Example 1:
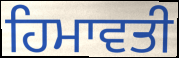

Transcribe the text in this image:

ਹਿਮਾਵਤੀ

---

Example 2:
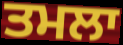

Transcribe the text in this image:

ਤਮਲਾ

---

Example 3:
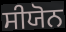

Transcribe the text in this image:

ਸੀਯੋਨ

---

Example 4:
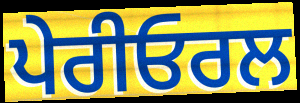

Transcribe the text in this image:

ਪੇਰੀਓਰਲ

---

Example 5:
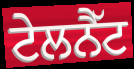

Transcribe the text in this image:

ਟੇਲਨੈੱਟ